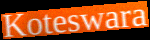
Koteswara